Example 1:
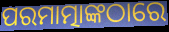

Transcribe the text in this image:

ପରମାତ୍ମାଙ୍କଠାରେ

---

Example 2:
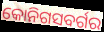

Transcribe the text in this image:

କୋନିଗସବର୍ଗର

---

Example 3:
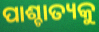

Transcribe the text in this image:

ପାଶ୍ଚାତ୍ୟକୁ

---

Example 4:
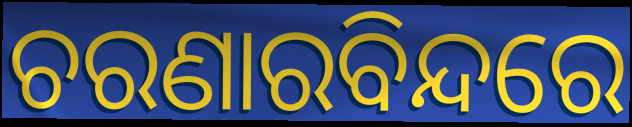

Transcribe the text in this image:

ଚରଣାରବିନ୍ଦରେ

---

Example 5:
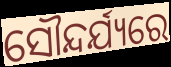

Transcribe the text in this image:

ସୌନ୍ଦର୍ଯ୍ୟରେ